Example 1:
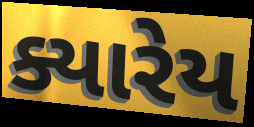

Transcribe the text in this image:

ક્યારેય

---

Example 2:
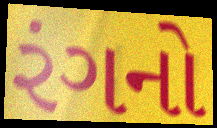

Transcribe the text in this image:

રંગનો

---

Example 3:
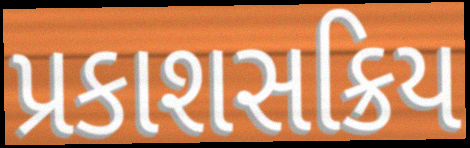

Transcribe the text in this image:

પ્રકાશસક્રિય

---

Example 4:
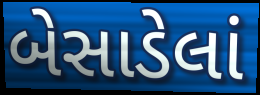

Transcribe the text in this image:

બેસાડેલાં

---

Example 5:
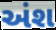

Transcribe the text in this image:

અંશ